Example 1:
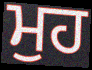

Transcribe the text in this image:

ਮੁਹ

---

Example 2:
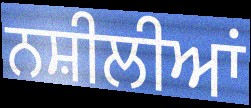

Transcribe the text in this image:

ਨਸ਼ੀਲੀਆਂ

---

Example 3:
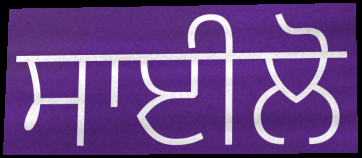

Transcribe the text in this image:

ਸਾਈਲੋ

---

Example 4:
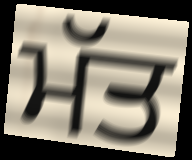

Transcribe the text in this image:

ਮੱਤ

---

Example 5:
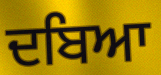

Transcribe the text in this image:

ਦਬਿਆ